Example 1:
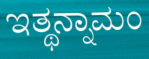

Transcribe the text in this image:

ಇತ್ಥನ್ನಾಮಂ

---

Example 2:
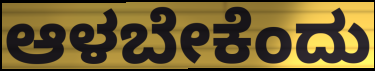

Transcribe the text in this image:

ಆಳಬೇಕೆಂದು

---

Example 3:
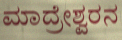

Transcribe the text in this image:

ಮಾದ್ರೇಶ್ವರನ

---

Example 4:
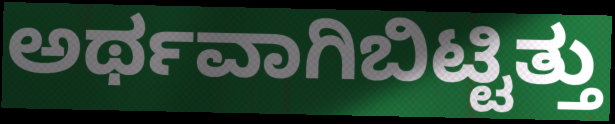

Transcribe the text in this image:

ಅರ್ಥವಾಗಿಬಿಟ್ಟಿತ್ತು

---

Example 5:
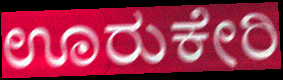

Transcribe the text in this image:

ಊರುಕೇರಿ